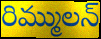
రిమ్ములన్